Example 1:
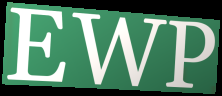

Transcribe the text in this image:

EWP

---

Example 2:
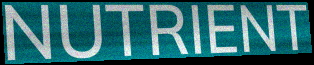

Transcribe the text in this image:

NUTRIENT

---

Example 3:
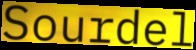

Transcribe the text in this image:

Sourdel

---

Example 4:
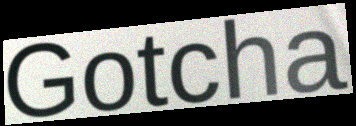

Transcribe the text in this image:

Gotcha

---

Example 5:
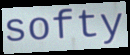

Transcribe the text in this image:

softy